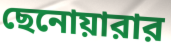
ছেনোয়ারার